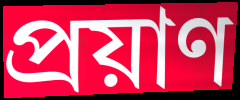
প্ৰয়াণ